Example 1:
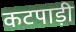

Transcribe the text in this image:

कटपाड़ी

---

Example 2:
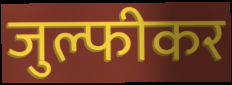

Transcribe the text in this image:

जुल्फीकर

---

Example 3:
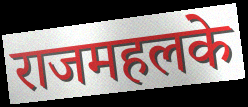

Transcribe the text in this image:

राजमहलके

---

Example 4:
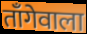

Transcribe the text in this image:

ताँगेवाला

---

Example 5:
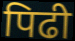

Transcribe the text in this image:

पिढी